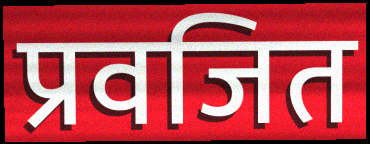
प्रवजित